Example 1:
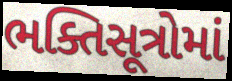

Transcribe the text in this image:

ભક્તિસૂત્રોમાં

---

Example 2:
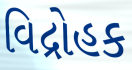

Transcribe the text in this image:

વિદ્રોહક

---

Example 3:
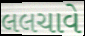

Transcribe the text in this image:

લલચાવે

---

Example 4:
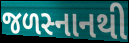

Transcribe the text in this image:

જળસ્નાનથી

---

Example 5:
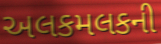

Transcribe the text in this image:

અલકમલકની